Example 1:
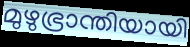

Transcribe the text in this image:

മുഴുഭ്രാന്തിയായി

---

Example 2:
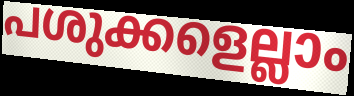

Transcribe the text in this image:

പശുക്കളെല്ലാം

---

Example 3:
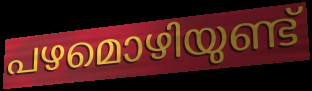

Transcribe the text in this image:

പഴമൊഴിയുണ്ട്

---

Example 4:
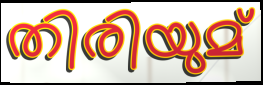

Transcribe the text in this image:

തിരിയുമ്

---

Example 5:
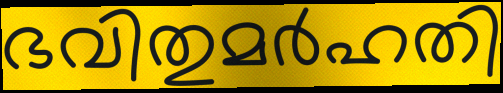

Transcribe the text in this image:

ഭവിതുമർഹതി